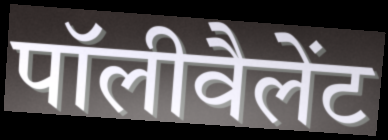
पॉलीवैलेंट